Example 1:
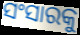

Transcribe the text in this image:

ସଂସାରକୁ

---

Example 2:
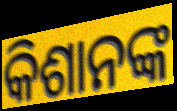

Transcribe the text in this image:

କିଶାନଙ୍କ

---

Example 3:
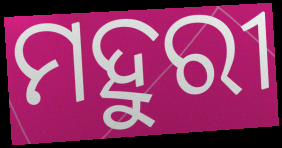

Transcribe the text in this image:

ମହୁରୀ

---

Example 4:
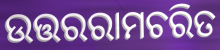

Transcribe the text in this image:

ଉତ୍ତରରାମଚରିତ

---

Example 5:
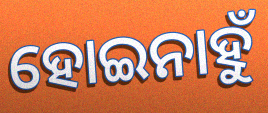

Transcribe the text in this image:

ହୋଇନାହୁଁ